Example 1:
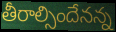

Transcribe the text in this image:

తీరాల్సిందేనన్న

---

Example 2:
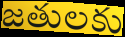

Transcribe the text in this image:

జతులకు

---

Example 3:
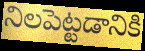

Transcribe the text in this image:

నిలపెట్టడానికి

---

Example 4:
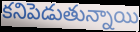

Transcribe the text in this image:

కనిపెడుతున్నాయి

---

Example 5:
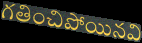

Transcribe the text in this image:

గతించిపోయినవి